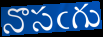
నొసఁగు